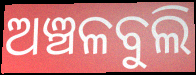
ଅଞ୍ଚଳବୁଲି